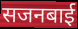
सजनबाई